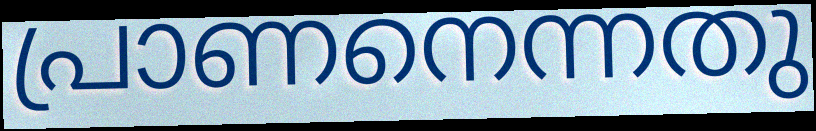
പ്രാണനെന്നതു